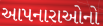
આપનારાઓનો